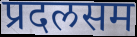
प्रदलसम